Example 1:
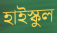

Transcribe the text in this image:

হাইস্কুল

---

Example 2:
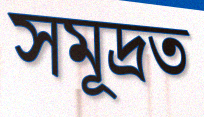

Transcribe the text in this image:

সমূদ্ৰত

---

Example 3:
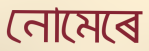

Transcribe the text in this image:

নোমেৰে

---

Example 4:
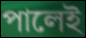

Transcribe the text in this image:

পালেই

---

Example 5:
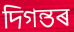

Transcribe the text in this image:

দিগন্তৰ